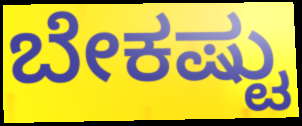
ಬೇಕಷ್ಟು